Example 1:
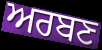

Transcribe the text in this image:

ਅਰਬਣ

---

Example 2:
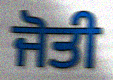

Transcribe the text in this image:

ਜੋਤੀ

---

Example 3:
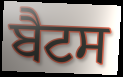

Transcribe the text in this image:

ਬੈਟਸ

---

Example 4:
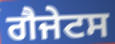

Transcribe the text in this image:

ਗੈਜੇਟਸ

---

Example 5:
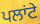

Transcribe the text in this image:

ਪਲਾਂਟੇ